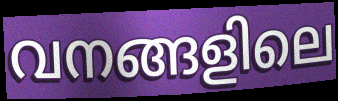
വനങ്ങളിലെ